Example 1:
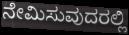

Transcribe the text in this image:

ನೇಮಿಸುವುದರಲ್ಲಿ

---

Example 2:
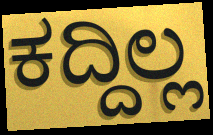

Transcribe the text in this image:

ಕದ್ದಿಲ್ಲ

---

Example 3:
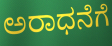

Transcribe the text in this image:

ಅರಾಧನೆಗೆ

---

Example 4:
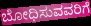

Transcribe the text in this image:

ಬೋಧಿಸುವವರಿಗೆ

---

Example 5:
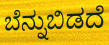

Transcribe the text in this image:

ಬೆನ್ನುಬಿಡದೆ